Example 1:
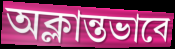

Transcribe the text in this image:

অক্লান্তভাবে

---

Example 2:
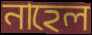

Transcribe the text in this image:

নাহেল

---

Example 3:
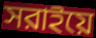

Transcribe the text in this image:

সরাইয়ে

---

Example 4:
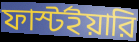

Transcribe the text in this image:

ফার্স্টইয়ারি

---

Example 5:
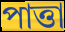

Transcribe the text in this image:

পাত্তা